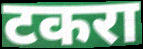
टकरा